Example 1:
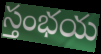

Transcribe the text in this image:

స్తంభయ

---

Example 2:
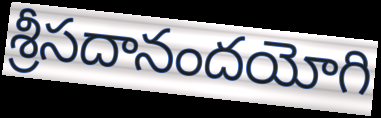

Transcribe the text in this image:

శ్రీసదానందయోగి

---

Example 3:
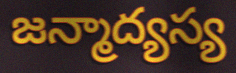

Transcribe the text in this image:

జన్మాద్యస్య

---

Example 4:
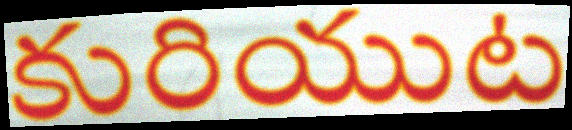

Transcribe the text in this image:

కురియుట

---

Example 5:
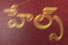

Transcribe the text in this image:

హేల్స్